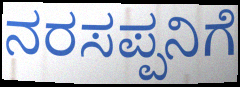
ನರಸಪ್ಪನಿಗೆ